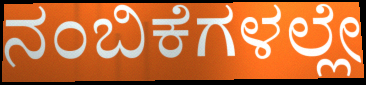
ನಂಬಿಕೆಗಳಲ್ಲೇ